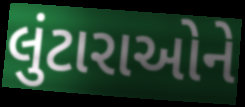
લુંટારાઓને